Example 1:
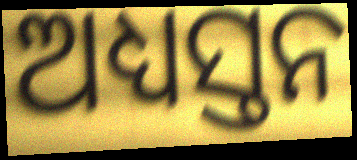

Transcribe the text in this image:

ଅଧ୍ୟସ୍ତନ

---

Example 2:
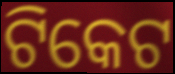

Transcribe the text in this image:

ଟିକେଟ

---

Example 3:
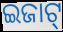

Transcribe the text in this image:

ଇଜାଟ୍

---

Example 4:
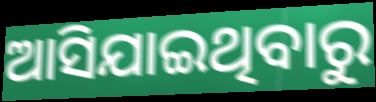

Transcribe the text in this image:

ଆସିଯାଇଥିବାରୁ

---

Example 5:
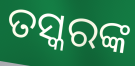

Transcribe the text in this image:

ତସ୍କରଙ୍କ